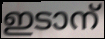
ഇടാന്